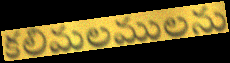
కలిమలములను